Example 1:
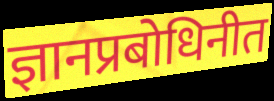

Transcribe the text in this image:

ज्ञानप्रबोधिनीत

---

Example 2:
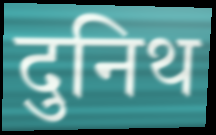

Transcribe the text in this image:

दुनिथ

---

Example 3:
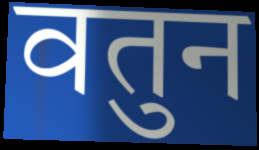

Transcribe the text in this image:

वतुन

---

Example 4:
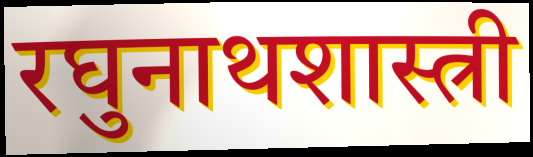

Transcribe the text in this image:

रघुनाथशास्त्री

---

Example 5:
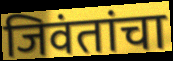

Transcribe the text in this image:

जिवंतांचा